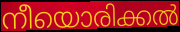
നീയൊരിക്കൽ